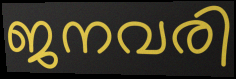
ജനവരി